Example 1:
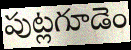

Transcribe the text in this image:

పుట్లగూడెం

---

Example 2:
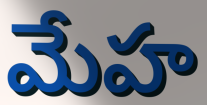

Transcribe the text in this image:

మేహ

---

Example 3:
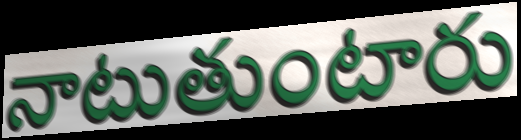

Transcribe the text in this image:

నాటుతుంటారు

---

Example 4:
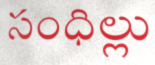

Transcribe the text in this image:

సంధిల్లు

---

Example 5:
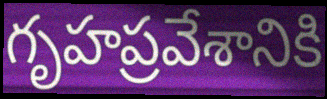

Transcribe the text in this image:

గృహప్రవేశానికి